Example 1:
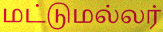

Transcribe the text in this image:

மட்டுமல்லர்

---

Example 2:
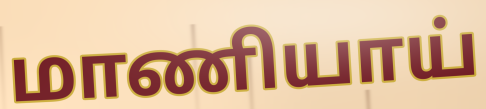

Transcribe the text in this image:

மாணியாய்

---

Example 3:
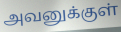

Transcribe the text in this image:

அவனுக்குள்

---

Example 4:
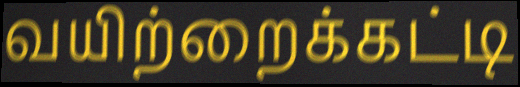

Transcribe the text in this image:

வயிற்றைக்கட்டி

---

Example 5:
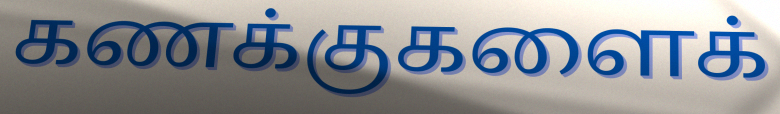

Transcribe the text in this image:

கணக்குகளைக்